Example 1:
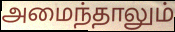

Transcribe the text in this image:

அமைந்தாலும்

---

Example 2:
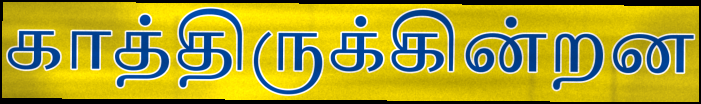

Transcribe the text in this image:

காத்திருக்கின்றன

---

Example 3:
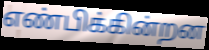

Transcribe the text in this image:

எண்பிக்கின்றன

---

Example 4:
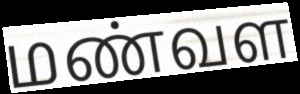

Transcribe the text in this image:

மண்வள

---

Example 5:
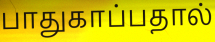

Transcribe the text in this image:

பாதுகாப்பதால்